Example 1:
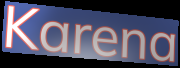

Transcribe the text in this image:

Karena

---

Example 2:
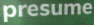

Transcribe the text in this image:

presume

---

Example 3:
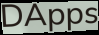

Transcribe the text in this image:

DApps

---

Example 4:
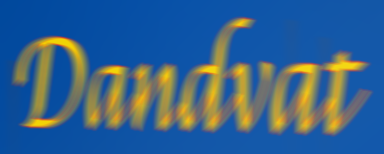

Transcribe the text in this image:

Dandvat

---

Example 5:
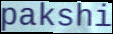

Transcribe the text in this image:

pakshi